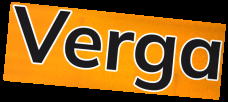
Verga